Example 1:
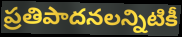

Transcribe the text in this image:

ప్రతిపాదనలన్నిటికీ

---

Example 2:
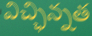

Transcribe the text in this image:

విచ్ఛిన్నత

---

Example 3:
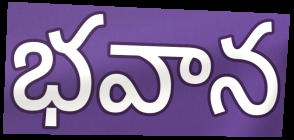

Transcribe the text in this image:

భవాన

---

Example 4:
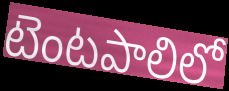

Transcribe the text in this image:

టెంటపాలిలో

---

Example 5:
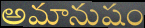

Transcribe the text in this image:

అమానుషం